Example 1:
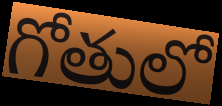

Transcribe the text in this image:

గోతులో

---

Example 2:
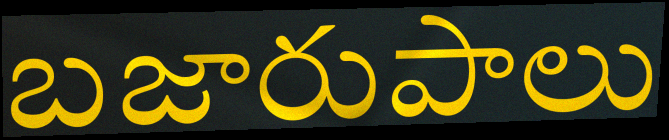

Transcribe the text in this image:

బజారుపాలు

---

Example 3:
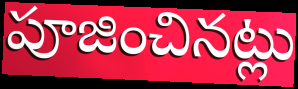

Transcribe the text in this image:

పూజించినట్లు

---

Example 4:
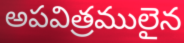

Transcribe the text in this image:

అపవిత్రములైన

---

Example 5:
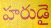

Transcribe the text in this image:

హరుడై